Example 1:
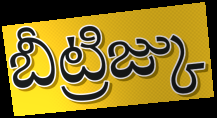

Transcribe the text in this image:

బీట్రిజ్కు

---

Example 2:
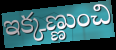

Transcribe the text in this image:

ఇక్కణ్ణుంచి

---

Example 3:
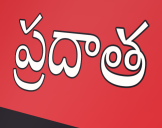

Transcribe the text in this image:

ప్రదాత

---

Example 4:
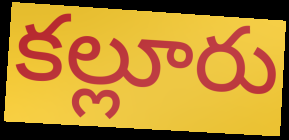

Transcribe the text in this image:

కల్లూరు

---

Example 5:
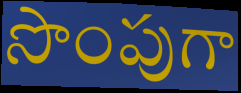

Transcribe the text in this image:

సొంపుగా